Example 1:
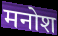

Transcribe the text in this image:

मनोश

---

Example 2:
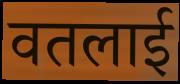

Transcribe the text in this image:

वतलाई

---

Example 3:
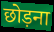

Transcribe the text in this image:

छोड़ना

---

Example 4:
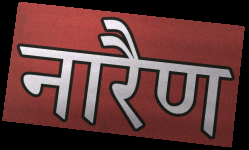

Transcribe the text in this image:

नारैण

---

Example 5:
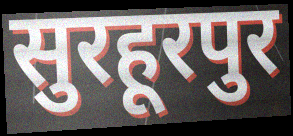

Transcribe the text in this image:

सुरहूरपुर